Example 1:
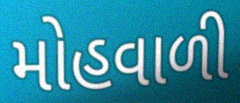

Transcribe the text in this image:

મોહવાળી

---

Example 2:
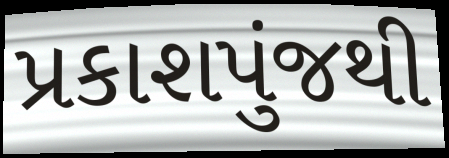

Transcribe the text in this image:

પ્રકાશપુંજથી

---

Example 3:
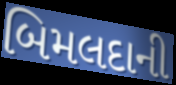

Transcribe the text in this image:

બિમલદાની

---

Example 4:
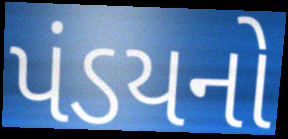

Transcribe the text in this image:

પંડયનો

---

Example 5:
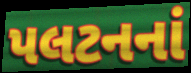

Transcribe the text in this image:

પલટનનાં